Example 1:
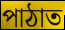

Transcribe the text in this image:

পাঠাত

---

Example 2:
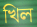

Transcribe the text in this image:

খিল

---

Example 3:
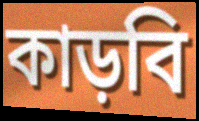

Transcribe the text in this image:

কাড়বি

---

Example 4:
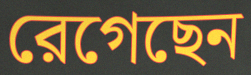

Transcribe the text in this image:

রেগেছেন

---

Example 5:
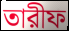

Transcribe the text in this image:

তারীফ